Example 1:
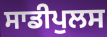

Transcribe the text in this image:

ਸਾਡੀਪੁਲਸ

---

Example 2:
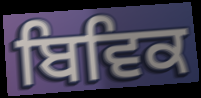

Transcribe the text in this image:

ਬਿਵਿਕ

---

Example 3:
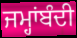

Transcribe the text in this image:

ਜਮ੍ਹਾਂਬੰਦੀ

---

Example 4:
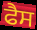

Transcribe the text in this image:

ਫੈਸ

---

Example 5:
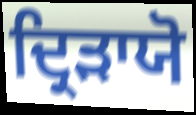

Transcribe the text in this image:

ਦ੍ਰਿੜਾਯੋ